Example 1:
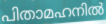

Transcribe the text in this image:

പിതാമഹനിൽ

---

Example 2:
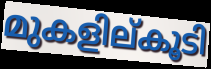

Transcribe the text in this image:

മുകളില്കൂടി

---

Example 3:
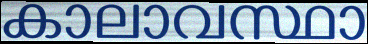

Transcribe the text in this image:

കാലാവസ്ഥാ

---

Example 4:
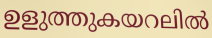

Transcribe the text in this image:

ഉളുത്തുകയറലിൽ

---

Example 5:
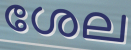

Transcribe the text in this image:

ശേല